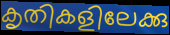
കൃതികളിലേക്കു